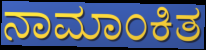
ನಾಮಾಂಕಿತ